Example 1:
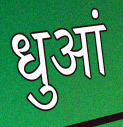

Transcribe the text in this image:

धुआं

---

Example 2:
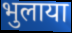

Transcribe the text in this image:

भुलाया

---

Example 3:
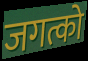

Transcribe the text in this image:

जगत्को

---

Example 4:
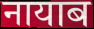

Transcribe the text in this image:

नायाब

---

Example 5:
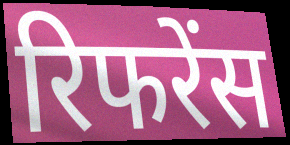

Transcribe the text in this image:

रिफरेंस